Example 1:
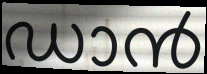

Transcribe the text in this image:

ഡാൻ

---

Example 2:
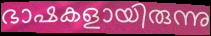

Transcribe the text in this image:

ഭാഷകളായിരുന്നു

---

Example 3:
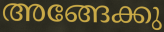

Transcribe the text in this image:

അങ്ങേക്കു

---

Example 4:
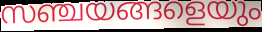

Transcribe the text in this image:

സഞ്ചയങ്ങളെയും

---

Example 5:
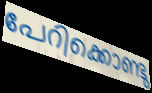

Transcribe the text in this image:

പേറിക്കൊണ്ടു